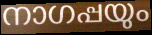
നാഗപ്പയും